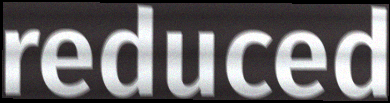
reduced